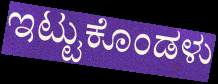
ಇಟ್ಟುಕೊಂಡಳು